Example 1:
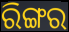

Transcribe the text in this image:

ରିଙ୍ଗର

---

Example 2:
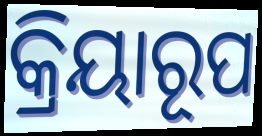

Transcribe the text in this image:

କ୍ରିୟାରୂପ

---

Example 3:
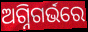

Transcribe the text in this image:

ଅଗ୍ନିଗର୍ଭରେ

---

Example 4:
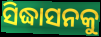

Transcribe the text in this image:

ସିଦ୍ଧାସନକୁ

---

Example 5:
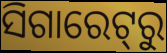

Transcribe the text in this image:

ସିଗାରେଟ୍‌ରୁ